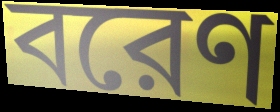
বরেণ